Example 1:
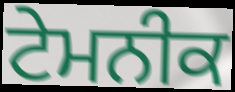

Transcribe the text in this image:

ਟੇਮਨੀਕ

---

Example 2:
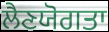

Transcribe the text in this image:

ਲੈਣਯੋਗਤਾ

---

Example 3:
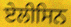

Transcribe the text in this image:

ਏਲੀਸਿਨ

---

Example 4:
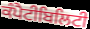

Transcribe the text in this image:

ਕੰਪੈਟੀਬਿਲਿਟੀ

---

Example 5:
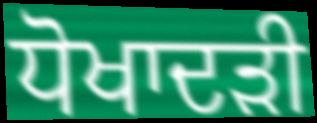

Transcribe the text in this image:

ਧੋਖਾਦੜੀ